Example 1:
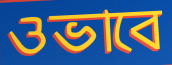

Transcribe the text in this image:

ওভাবে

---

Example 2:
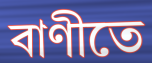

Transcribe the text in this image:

বাণীতে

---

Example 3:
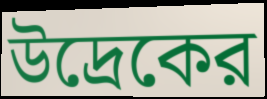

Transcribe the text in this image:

উদ্রেকের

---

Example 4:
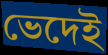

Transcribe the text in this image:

ভেদেই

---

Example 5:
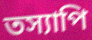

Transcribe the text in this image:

তস্যাপি